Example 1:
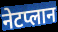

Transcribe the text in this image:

नेटप्लान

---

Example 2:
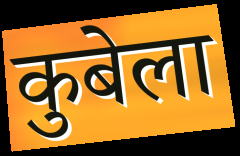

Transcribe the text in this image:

कुबेला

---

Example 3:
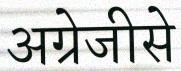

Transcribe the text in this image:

अग्रेजीसे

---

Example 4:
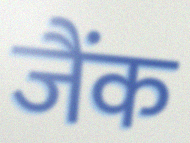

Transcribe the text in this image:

जैंक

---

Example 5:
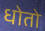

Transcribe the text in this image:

धोतो